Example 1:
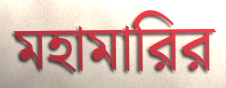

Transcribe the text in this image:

মহামারির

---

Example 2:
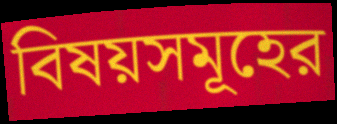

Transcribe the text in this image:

বিষয়সমূহের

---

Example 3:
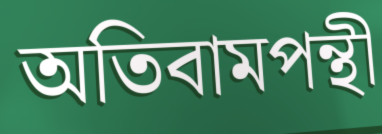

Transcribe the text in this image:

অতিবামপন্থী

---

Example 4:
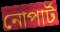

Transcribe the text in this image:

নোপার্ট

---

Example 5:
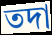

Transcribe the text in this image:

তদা